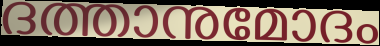
ദത്താനുമോദം